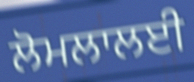
ਲੋਮਲਾਲਈ